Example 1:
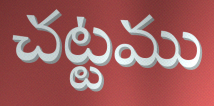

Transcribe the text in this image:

చట్టము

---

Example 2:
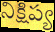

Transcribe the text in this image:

నిక్షిప్య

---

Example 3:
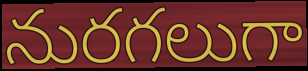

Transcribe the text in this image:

నురగలుగా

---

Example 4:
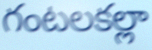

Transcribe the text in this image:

గంటలకల్లా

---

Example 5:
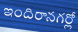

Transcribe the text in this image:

ఇందిరానగర్లో